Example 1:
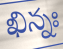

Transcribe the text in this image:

ఖిన్నః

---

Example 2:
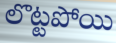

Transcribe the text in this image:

లొట్టపోయి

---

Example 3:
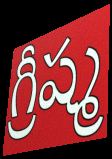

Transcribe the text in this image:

గ్రీష్మ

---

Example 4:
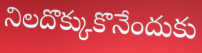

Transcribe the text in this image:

నిలదొక్కుకొనేందుకు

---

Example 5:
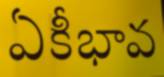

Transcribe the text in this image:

ఏకీభావ